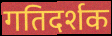
गतिदर्शक